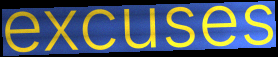
excuses